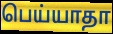
பெய்யாதா